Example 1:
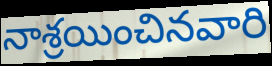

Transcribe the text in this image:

నాశ్రయించినవారి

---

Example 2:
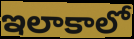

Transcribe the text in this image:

ఇలాకాలో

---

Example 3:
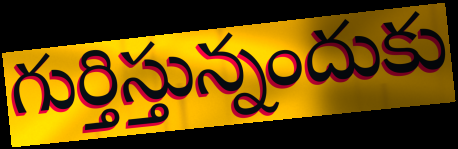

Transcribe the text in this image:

గుర్తిస్తున్నందుకు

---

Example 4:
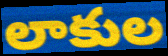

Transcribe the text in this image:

లాకుల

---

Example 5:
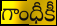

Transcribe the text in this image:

గాంధీకీ